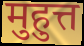
मुहुत्त